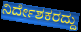
ನಿರ್ದೇಶಕರದ್ದು